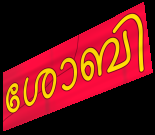
ശോബി